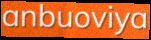
anbuoviya